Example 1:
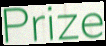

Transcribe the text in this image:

Prize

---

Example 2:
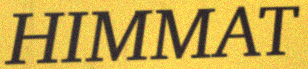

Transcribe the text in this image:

HIMMAT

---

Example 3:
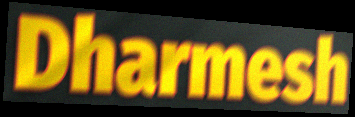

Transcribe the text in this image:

Dharmesh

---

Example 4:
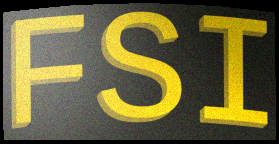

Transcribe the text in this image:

FSI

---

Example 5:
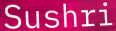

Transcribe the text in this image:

Sushri